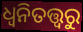
ଧ୍ୱନିତତ୍ତ୍ୱରୁ